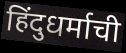
हिंदुधर्माची